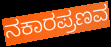
ನಕಾರಪ್ರಣವ